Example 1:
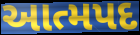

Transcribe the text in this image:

આત્મપદ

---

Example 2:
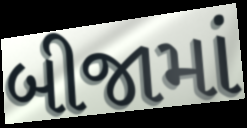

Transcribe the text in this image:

બીજામાં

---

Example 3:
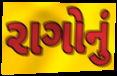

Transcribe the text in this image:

રાગોનું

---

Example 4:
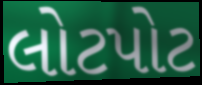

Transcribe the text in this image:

લોટપોટ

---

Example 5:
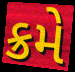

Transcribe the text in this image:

ક્રમે